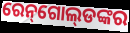
ରେନ୍‌ଗୋଲ୍‌ଡଙ୍କର